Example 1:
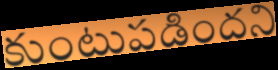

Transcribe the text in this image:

కుంటుపడిందని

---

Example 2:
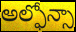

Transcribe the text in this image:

అల్ఫోన్సా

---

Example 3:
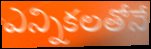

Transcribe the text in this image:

ఎన్నికలతోనే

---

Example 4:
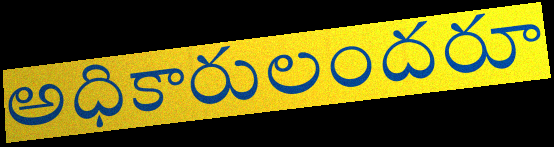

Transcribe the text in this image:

అధికారులందరూ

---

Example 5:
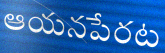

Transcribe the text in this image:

ఆయనపేరట